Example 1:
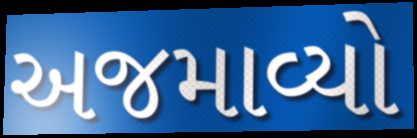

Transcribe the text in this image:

અજમાવ્યો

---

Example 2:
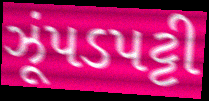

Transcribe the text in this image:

ઝૂંપડપટ્ટી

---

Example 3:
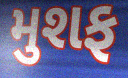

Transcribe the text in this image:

મુશફ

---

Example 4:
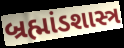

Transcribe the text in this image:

બ્રહ્માંડશાસ્ત્ર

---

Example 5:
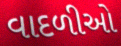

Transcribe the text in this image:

વાદળીઓ